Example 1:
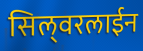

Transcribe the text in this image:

सिल्वरलाईन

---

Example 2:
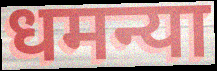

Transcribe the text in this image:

धमन्या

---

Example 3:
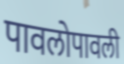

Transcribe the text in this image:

पावलोपावली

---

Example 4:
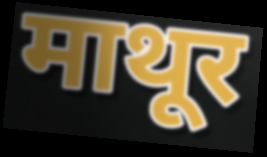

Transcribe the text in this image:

माथूर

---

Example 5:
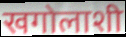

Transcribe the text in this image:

खगोलाशी